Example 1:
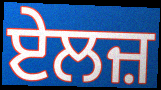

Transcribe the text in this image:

ਏਲਜ਼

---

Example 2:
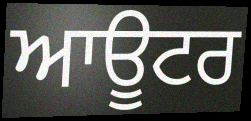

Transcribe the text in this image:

ਆਊਟਰ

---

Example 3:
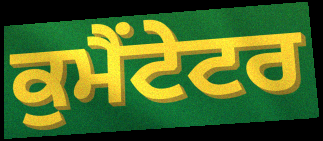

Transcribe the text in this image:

ਕੁਮੈਂਟੇਟਰ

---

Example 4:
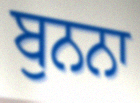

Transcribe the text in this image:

ਬੁਨਨਾ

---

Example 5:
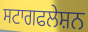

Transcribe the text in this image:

ਸਟਾਗਫਲੇਸ਼ਨ